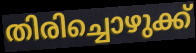
തിരിച്ചൊഴുക്ക്